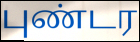
புண்டர